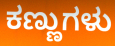
ಕಣ್ಣುಗಳು